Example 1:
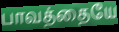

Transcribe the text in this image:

பாவத்தையே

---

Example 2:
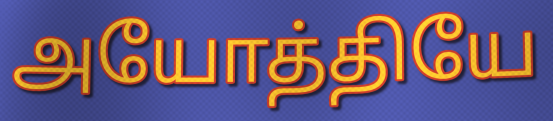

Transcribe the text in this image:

அயோத்தியே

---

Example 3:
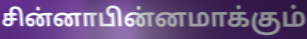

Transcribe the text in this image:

சின்னாபின்னமாக்கும்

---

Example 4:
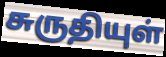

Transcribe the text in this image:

சுருதியுள்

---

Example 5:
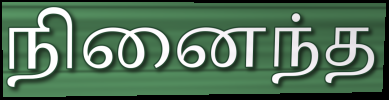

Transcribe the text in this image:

நினைந்த